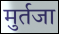
मुर्तजा